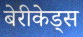
बेरीकेड्स